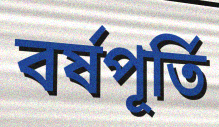
বর্ষপূর্তি